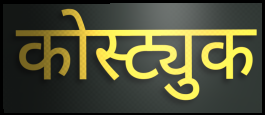
कोस्ट्युक